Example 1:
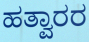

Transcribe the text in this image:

ಹತ್ವಾರರ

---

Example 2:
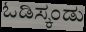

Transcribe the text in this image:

ಓಡಿಸ್ಕಂಡು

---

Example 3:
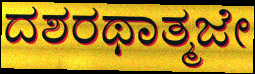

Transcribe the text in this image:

ದಶರಥಾತ್ಮಜೇ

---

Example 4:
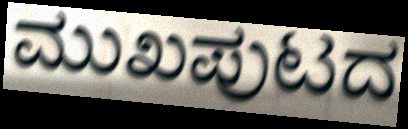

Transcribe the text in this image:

ಮುಖಪುಟದ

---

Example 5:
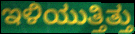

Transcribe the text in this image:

ಇಳಿಯುತ್ತಿತ್ತು